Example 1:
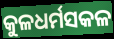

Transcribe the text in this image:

କୁଳଧର୍ମସକଳ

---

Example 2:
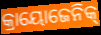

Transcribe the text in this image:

କ୍ରାୟୋଜେନିକ୍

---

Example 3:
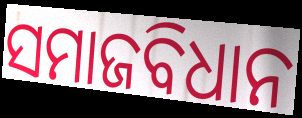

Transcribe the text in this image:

ସମାଜବିଧାନ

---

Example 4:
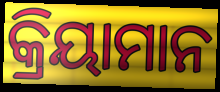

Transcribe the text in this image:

କ୍ରିୟାମାନ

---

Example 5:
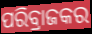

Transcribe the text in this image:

ପରିବ୍ରାଜକର